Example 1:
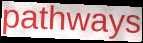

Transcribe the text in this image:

pathways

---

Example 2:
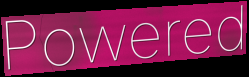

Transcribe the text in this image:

Powered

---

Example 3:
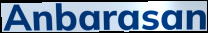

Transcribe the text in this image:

Anbarasan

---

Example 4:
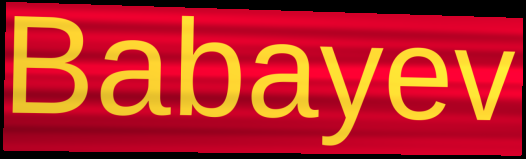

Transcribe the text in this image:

Babayev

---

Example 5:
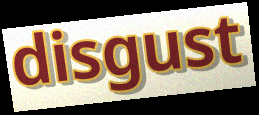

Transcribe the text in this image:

disgust